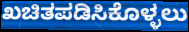
ಖಚಿತಪಡಿಸಿಕೊಳ್ಳಲು